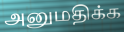
அனுமதிக்க